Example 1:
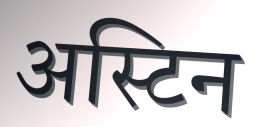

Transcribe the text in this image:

अस्टिन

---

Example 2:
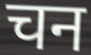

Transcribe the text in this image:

चन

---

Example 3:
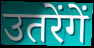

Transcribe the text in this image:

उतरेंगें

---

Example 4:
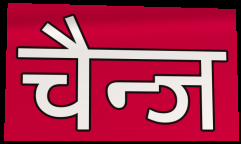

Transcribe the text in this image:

चैन्ज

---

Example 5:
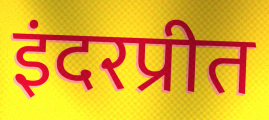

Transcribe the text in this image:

इंदरप्रीत